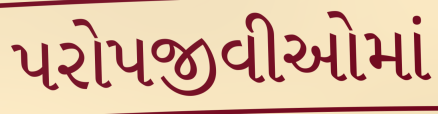
પરોપજીવીઓમાં